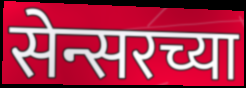
सेन्सरच्या